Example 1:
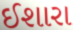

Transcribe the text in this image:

ઈશારા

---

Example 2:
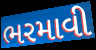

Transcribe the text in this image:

ભરમાવી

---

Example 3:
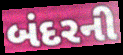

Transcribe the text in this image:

બંદરની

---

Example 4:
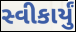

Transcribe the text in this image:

સ્વીકાર્યું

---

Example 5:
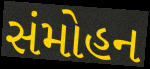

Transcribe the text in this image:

સંમોહન